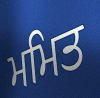
ਮਮਿਤ